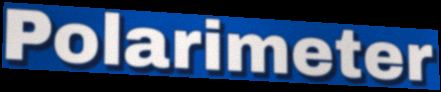
Polarimeter